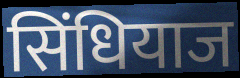
सिंधियाज